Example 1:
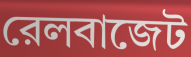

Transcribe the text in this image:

রেলবাজেট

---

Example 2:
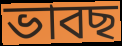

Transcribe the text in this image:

ভাবছ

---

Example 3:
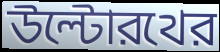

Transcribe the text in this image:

উল্টোরথের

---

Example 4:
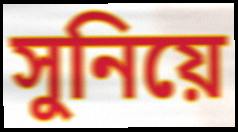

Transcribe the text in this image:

সুনিয়ে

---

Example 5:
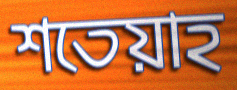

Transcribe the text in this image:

শতেয়াহ